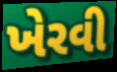
ખેરવી